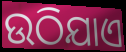
ଉଠିଯାଏ